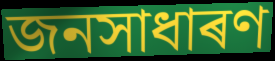
জনসাধাৰণ